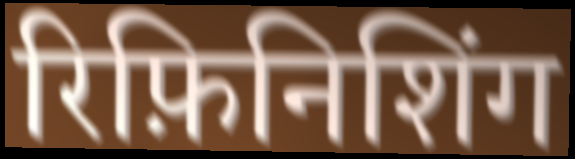
रिफ़िनिशिंग